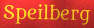
Speilberg